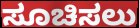
ಸೂಚಿಸಲು